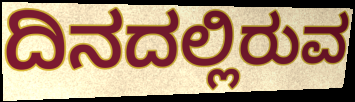
ದಿನದಲ್ಲಿರುವ